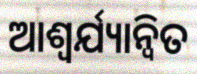
ଆଶ୍ବର୍ଯ୍ୟାନ୍ବିତ